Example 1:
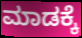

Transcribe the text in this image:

ಮಾಡಕ್ಕೆ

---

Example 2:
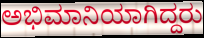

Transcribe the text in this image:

ಅಭಿಮಾನಿಯಾಗಿದ್ದರು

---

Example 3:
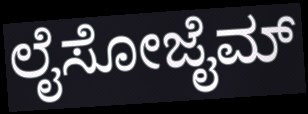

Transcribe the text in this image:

ಲೈಸೋಜೈಮ್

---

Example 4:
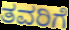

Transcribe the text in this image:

ತವರಿಗೆ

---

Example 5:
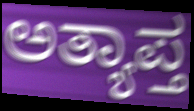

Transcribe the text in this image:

ಅತ್ಯಾಪ್ತ